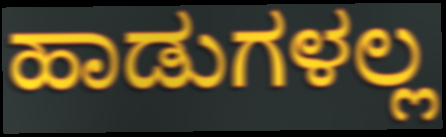
ಹಾಡುಗಳಲ್ಲ